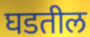
घडतील